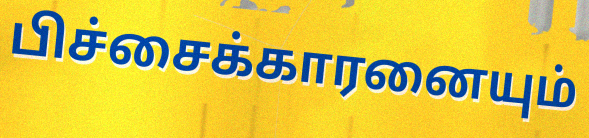
பிச்சைக்காரனையும்